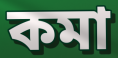
কমা